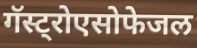
गॅस्ट्रोएसोफेजल